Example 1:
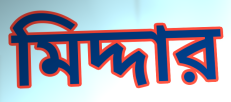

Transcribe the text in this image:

মিদ্দার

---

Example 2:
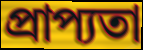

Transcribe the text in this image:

প্রাপ্যতা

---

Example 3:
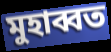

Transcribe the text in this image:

মুহাব্বত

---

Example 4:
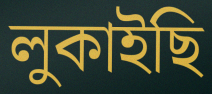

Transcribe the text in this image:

লুকাইছি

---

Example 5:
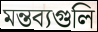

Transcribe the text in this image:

মন্তব্যগুলি